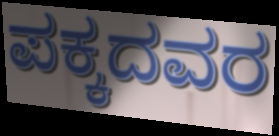
ಪಕ್ಕದವರ